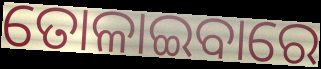
ତୋଳାଇବାରେ